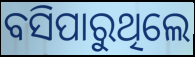
ବସିପାରୁଥିଲେ